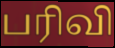
பரிவி